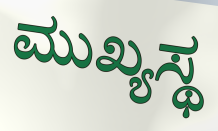
ಮುಖ್ಯಸ್ಥ